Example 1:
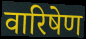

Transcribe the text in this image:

वारिषेण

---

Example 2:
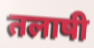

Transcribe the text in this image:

तलाषी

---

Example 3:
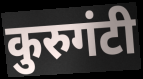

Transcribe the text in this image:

कुरुगंटी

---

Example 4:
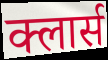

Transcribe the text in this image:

क्लार्स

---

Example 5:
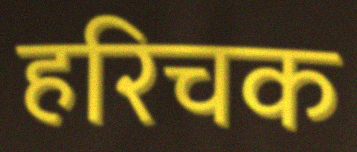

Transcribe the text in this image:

हरिचक